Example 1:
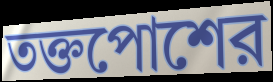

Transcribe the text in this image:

তক্তপোশের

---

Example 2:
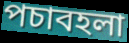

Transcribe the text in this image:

পচাবহলা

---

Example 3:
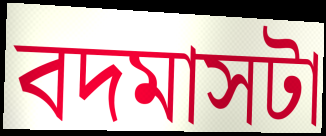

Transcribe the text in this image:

বদমাসটা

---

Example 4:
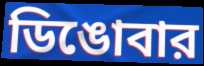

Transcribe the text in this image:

ডিঙোবার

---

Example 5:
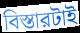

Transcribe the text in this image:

বিস্তারটাই